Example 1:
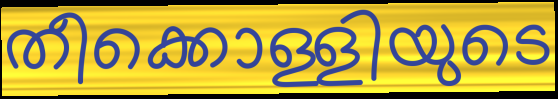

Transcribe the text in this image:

തീക്കൊള്ളിയുടെ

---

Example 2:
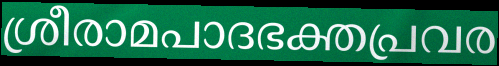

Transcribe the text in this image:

ശ്രീരാമപാദഭക്തപ്രവര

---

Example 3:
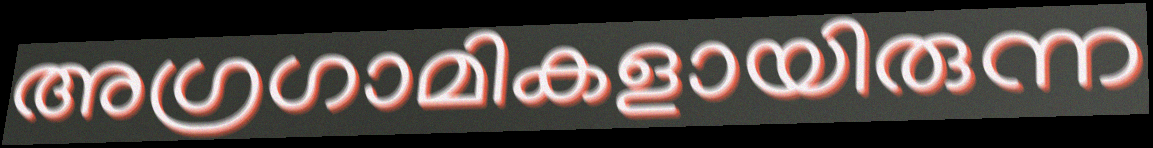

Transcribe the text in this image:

അഗ്രഗാമികളായിരുന്ന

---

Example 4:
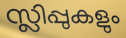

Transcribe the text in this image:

സ്ലിപ്പുകളും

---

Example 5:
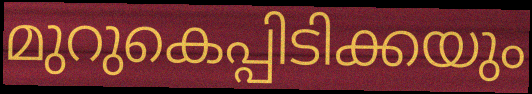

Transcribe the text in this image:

മുറുകെപ്പിടിക്കയും